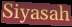
Siyasah